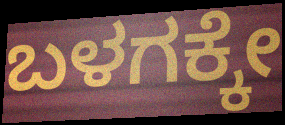
ಬಳಗಕ್ಕೇ